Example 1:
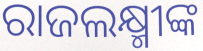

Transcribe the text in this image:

ରାଜଲକ୍ଷ୍ମୀଙ୍କ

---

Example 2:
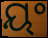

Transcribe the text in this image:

ୟଂ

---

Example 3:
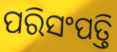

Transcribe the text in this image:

ପରିସଂପତ୍ତି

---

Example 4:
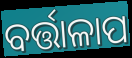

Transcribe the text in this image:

ବର୍ତ୍ତାଳାପ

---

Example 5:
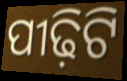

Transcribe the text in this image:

ପୀଢ଼ିଟି